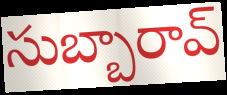
సుబ్బారావ్